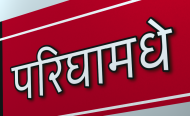
परिघामधे